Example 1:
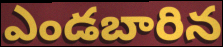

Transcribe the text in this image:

ఎండబారిన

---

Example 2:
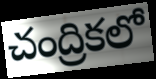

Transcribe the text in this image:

చంద్రికలో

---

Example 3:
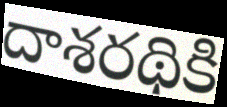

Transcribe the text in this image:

దాశరథికి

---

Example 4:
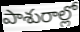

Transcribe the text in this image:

పాశురాల్లో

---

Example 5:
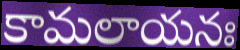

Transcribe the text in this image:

కామలాయనః